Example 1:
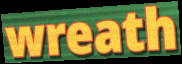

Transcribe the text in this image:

wreath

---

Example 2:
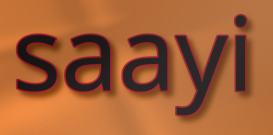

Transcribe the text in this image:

saayi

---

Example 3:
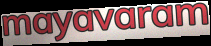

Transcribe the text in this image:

mayavaram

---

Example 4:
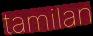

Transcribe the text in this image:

tamilan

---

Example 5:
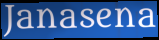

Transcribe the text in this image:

Janasena